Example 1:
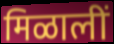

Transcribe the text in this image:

मिळालीं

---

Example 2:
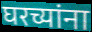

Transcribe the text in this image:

घरच्यांना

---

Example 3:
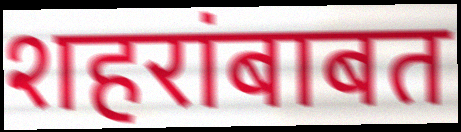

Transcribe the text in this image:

शहरांबाबत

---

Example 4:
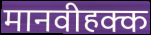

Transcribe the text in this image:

मानवीहक्क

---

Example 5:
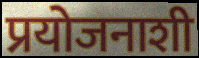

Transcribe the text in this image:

प्रयोजनाशी